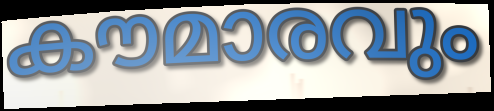
കൗമാരവും